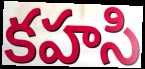
కహసి